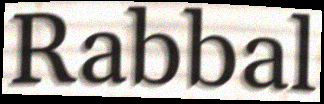
Rabbal